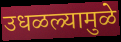
उधळल्यामुळे